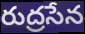
రుద్రసేన